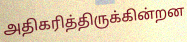
அதிகரித்திருக்கின்றன